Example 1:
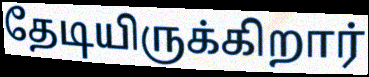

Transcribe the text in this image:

தேடியிருக்கிறார்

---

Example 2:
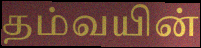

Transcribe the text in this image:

தம்வயின்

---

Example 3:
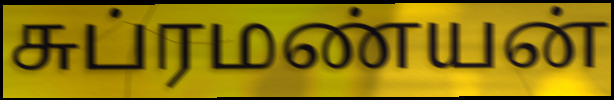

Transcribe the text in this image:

சுப்ரமண்யன்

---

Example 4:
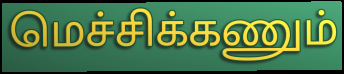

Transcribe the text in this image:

மெச்சிக்கணும்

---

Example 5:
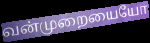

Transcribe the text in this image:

வன்முறையையோ